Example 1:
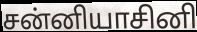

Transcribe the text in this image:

சன்னியாசினி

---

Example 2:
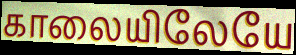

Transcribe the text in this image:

காலையிலேயே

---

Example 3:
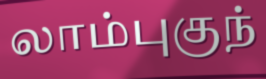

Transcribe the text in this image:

லாம்புகுந்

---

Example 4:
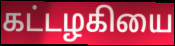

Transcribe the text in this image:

கட்டழகியை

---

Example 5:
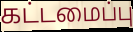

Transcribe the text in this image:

கட்டமைப்பு